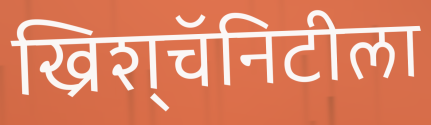
ख्रिश्चॅनिटीला